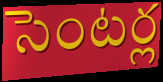
సెంటర్ల